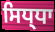
ਸਿਧ੍ਧਾ